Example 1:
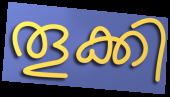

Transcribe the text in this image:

തൂക്കി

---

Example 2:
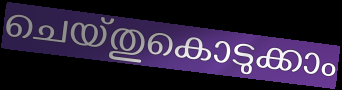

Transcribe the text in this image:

ചെയ്തുകൊടുക്കാം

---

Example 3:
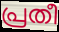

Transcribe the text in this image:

പ്രതീ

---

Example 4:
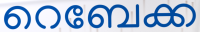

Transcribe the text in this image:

റെബേക്ക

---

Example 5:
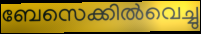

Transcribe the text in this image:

ബേസെക്കിൽവെച്ചു